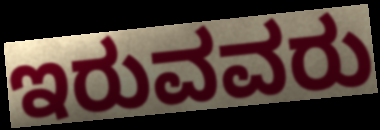
ಇರುವವರು